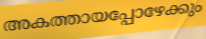
അകത്തായപ്പോഴേക്കും